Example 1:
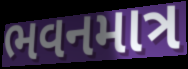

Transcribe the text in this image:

ભવનમાત્ર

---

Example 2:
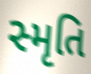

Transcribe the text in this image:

સ્મૃતિ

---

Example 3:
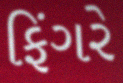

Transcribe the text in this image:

ફિંગરે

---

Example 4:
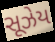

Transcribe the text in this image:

સૂઝેય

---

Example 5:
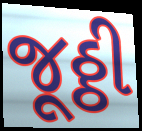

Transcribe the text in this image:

જૂઠ્ઠી